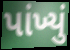
પાંખ્યું